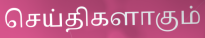
செய்திகளாகும்